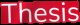
Thesis